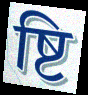
ष्टि